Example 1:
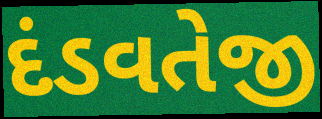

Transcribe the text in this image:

દંડવતેજી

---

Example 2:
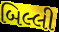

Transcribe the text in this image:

બિલ્લી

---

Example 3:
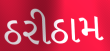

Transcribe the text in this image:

ઠરીઠામ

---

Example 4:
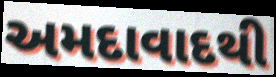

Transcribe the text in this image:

અમદાવાદથી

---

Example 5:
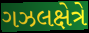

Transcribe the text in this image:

ગઝલક્ષેત્રે